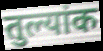
तुल्यांक